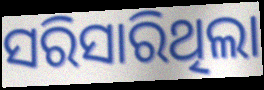
ସରିସାରିଥିଲା